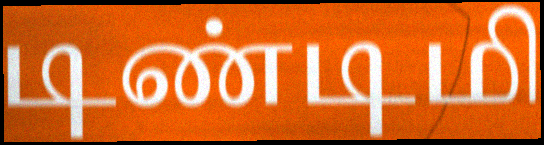
டிண்டிமி